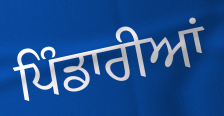
ਪਿੰਡਾਰੀਆਂ